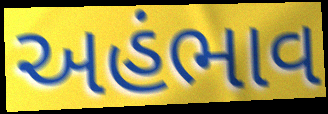
અહંભાવ